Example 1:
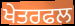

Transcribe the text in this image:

ਖੇਤਰਫਲ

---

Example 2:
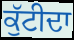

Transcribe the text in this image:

ਕੁੱਟੀਦਾ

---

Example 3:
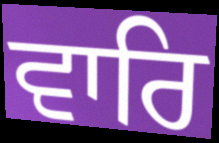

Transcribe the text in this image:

ਵਾਰਿ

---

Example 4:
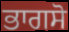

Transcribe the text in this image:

ਭਾਗਸੋ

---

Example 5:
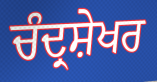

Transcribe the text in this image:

ਚੰਦ੍ਰਸ਼ੇਖਰ